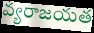
వ్యరాజయత